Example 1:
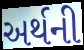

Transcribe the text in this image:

અર્થની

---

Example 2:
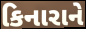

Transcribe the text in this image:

કિનારાને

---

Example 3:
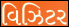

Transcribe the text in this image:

વિઝિટર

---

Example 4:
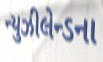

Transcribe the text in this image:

ન્યુઝીલેન્ડના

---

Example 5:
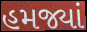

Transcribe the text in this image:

હમજ્યાં